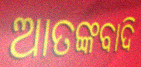
ଆତଙ୍କବାଦି